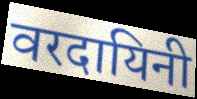
वरदायिनी